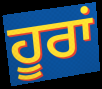
ਹੂਰਾਂ